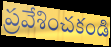
ప్రవేశించకండి